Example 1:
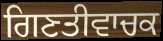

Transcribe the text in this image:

ਗਿਣਤੀਵਾਚਕ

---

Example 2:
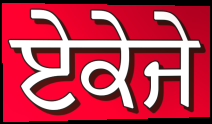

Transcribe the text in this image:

ਏਕੇਜੇ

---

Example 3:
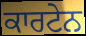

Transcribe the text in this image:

ਕਾਰਟੇਨ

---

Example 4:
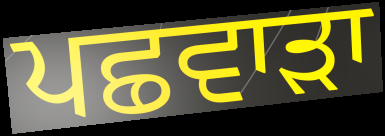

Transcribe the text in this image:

ਪਛਵਾੜਾ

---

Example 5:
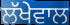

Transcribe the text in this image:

ਲੱਖੇਵਾਲ